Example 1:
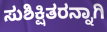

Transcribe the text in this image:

ಸುಶಿಕ್ಷಿತರನ್ನಾಗಿ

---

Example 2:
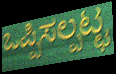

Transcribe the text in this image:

ಒಪ್ಪಿಸಲ್ಪಟ್ಟ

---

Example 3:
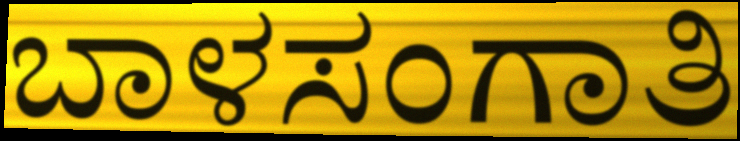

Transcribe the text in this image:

ಬಾಳಸಂಗಾತಿ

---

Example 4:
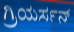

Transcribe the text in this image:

ಗ್ರಿಯರ್ಸನ್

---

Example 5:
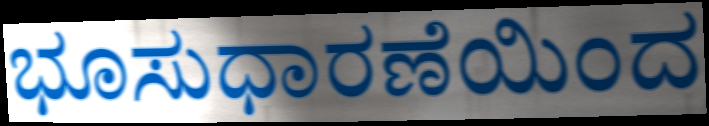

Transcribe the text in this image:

ಭೂಸುಧಾರಣೆಯಿಂದ